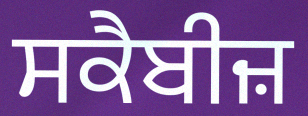
ਸਕੈਬੀਜ਼